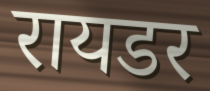
रायडर